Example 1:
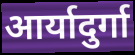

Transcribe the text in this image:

आर्यादुर्गा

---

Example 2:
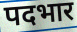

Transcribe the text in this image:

पदभार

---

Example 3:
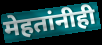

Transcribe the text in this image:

मेहतांनीही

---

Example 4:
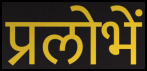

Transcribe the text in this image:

प्रलोभें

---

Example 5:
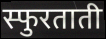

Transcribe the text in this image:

स्फुरताती